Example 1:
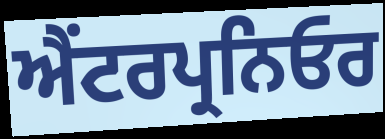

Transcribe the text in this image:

ਐਂਟਰਪ੍ਰਨਿਓਰ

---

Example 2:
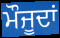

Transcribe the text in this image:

ਮੌਜੂਦਾਂ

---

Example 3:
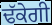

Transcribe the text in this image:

ਢੱਕੇਗੀ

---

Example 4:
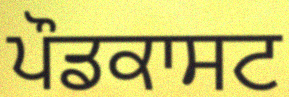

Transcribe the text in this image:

ਪੌਡਕਾਸਟ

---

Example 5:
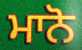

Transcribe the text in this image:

ਮਾਨੋ